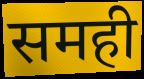
समही